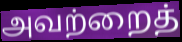
அவற்றைத்